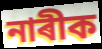
নাৰীক